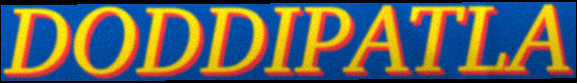
DODDIPATLA